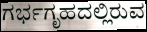
ಗರ್ಭಗೃಹದಲ್ಲಿರುವ